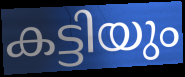
കട്ടിയും